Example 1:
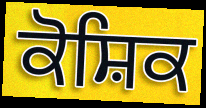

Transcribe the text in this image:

ਕੋਸ਼ਿਕ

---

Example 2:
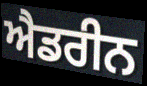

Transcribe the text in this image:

ਐਡਰੀਨ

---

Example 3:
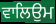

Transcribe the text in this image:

ਵਾਲਿਉਮ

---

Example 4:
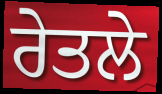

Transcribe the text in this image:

ਰੇਤਲੇ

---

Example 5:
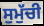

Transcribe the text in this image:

ਸੁਮੁੱਚੀ